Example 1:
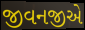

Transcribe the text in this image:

જીવનજીએ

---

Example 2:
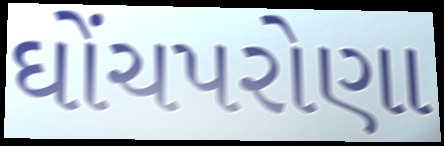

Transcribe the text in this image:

ઘોંચપરોણા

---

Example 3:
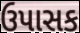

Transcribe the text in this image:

ઉપાસક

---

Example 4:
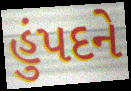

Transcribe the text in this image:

હુંપદને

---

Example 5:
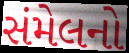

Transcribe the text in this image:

સંમેલનો